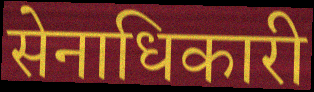
सेनाधिकारी